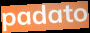
padato